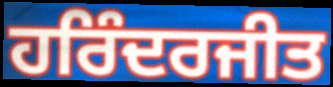
ਹਰਿੰਦਰਜੀਤ